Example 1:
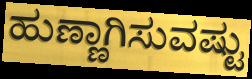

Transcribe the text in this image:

ಹುಣ್ಣಾಗಿಸುವಷ್ಟು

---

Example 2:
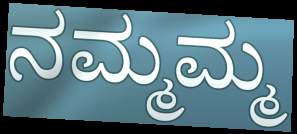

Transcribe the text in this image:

ನಮ್ಮಮ್ಮ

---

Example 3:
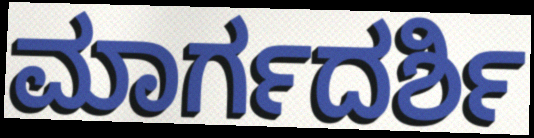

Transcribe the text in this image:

ಮಾರ್ಗದರ್ಶಿ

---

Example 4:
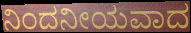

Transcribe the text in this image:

ನಿಂದನೀಯವಾದ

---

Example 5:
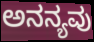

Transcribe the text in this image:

ಅನನ್ಯವು